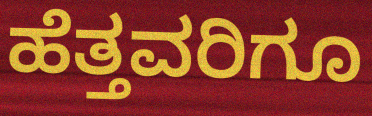
ಹೆತ್ತವರಿಗೂ